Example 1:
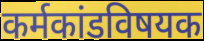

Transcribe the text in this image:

कर्मकांडविषयक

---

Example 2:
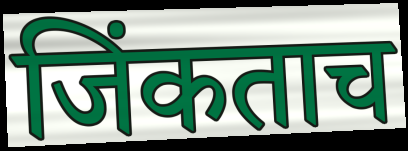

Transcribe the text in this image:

जिंकताच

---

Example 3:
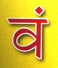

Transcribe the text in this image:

वं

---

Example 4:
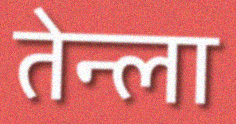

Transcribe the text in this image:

तेन्ला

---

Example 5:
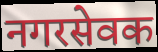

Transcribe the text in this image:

नगरसेवक